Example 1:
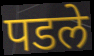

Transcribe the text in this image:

पडले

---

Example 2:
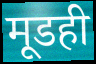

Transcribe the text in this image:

मूडही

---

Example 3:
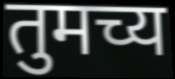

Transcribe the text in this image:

तुमच्य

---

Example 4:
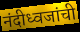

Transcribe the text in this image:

नंदीध्वजांची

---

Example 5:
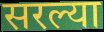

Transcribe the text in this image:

सरल्या